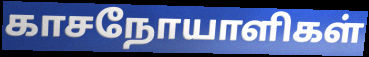
காசநோயாளிகள்